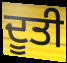
ਦੂਤੀ